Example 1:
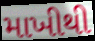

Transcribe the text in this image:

માખીથી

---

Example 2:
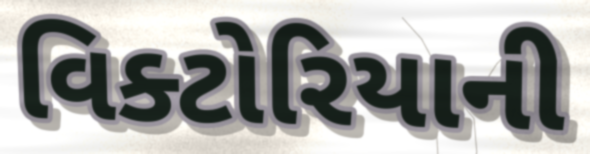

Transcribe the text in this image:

વિક્ટોરિયાની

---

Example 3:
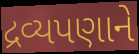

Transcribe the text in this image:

દ્રવ્યપણાને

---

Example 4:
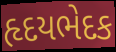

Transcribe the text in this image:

હૃદયભેદક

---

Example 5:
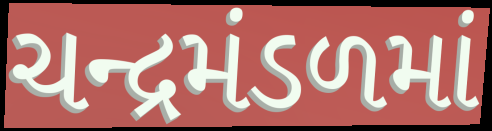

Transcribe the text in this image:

ચન્દ્રમંડળમાં